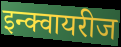
इन्क्वायरीज